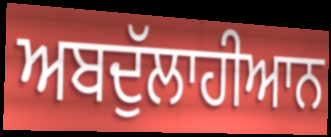
ਅਬਦੁੱਲਾਹੀਆਨ